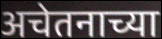
अचेतनाच्या